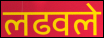
लढवले